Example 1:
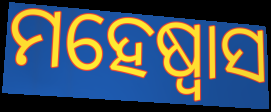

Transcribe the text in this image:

ମହେଷ୍ୱାସ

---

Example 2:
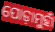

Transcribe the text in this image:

ପୋଡ଼ାମୁହାଁ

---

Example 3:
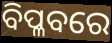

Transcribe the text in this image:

ବିପ୍ଳବରେ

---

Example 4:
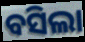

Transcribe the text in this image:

ବସିଲା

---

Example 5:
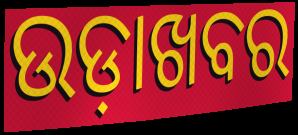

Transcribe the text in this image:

ଉଡ଼ାଖବର